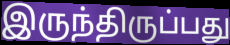
இருந்திருப்பது